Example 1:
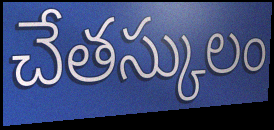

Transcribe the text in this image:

చేతస్కులం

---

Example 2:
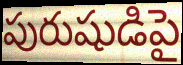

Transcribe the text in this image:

పురుషుడిపై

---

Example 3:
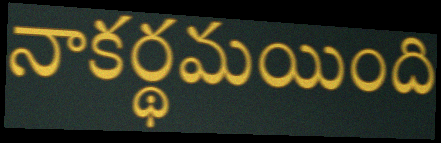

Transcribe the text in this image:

నాకర్థమయింది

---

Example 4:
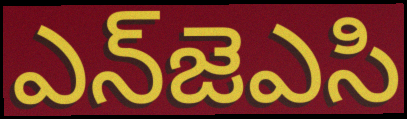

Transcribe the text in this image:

ఎన్‌జెఎసి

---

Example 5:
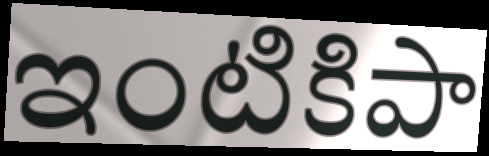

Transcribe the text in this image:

ఇంటికిపా